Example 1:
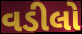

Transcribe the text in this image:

વડીલો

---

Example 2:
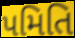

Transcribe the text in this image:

પમિતિ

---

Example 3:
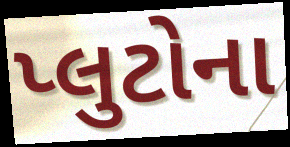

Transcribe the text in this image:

પ્લુટોના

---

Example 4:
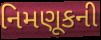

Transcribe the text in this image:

નિમણૂકની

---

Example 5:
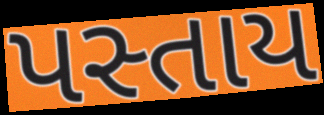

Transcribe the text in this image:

પસ્તાય